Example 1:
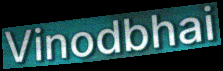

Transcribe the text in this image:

Vinodbhai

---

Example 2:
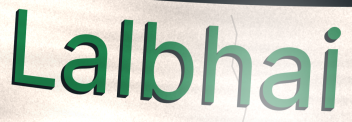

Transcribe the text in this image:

Lalbhai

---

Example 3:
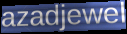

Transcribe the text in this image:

azadjewel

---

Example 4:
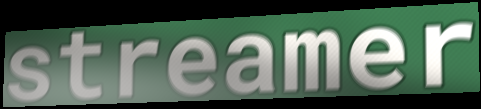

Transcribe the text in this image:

streamer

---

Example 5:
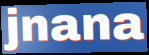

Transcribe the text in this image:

jnana